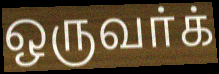
ஒருவர்க்